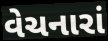
વેચનારાં